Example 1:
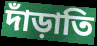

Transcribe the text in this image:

দাঁড়াতি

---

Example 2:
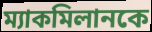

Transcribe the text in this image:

ম্যাকমিলানকে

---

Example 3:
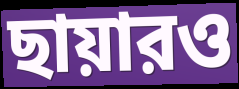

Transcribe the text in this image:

ছায়ারও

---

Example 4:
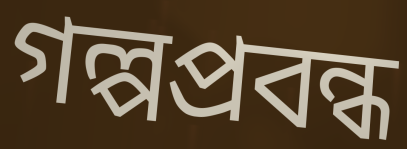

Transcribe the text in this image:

গল্পপ্রবন্ধ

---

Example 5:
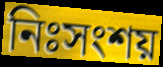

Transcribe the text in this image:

নিঃসংশয়